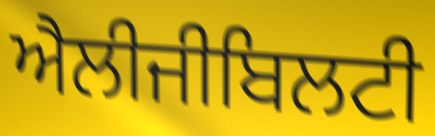
ਐਲੀਜੀਬਿਲਟੀ